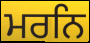
ਮਰਨਿ